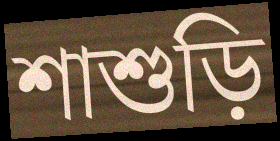
শাশুড়ি